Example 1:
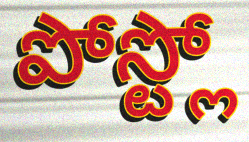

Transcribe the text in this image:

పోస్ట్లో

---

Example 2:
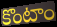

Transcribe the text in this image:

కొంటాం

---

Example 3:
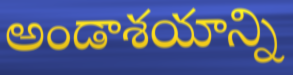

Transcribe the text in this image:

అండాశయాన్ని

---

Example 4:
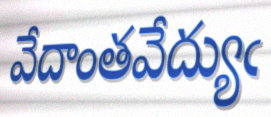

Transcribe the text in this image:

వేదాంతవేద్యుఁ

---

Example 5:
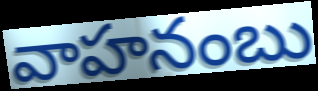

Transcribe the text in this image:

వాహనంబు